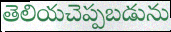
తెలియచెప్పబడును